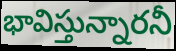
భావిస్తున్నారనీ